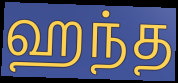
ஹந்த